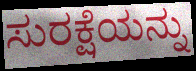
ಸುರಕ್ಷೆಯನ್ನು